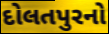
દોલતપુરનો